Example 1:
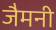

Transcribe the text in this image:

जैमनी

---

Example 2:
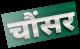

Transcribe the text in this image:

चौंसर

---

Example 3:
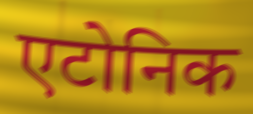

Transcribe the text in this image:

एटोनिक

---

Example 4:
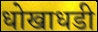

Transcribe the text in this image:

धोखाधडी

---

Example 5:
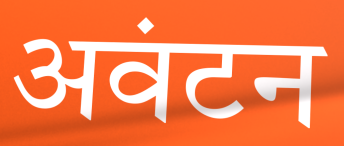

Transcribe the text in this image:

अवंटन